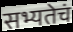
सभ्यतेचं